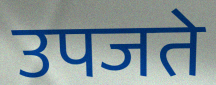
उपजते